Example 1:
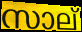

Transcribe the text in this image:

സാല്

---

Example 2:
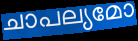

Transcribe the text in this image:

ചാപല്യമോ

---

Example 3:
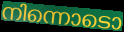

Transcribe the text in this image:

നിന്നൊടൊ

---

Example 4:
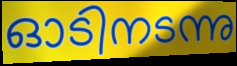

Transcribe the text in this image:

ഓടിനടന്നു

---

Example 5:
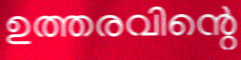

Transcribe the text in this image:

ഉത്തരവിന്റെ